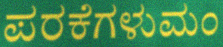
ಪರಕೆಗಳುಮಂ